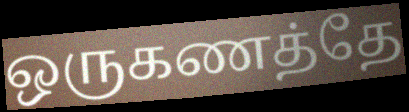
ஒருகணத்தே